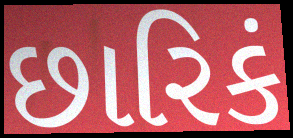
છારિકં